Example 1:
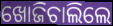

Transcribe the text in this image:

ଖୋଜିଚାଲିଲେ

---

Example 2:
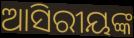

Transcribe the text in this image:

ଆସିରୀୟଙ୍କ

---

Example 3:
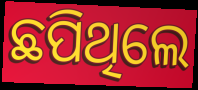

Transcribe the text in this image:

ଛପିଥିଲେ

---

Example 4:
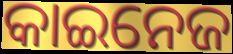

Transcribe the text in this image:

କାଇନେଜ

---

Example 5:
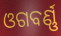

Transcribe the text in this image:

ଓଗବର୍ଣ୍ଣ